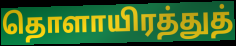
தொளாயிரத்துத்